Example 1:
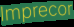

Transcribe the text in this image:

Imprecor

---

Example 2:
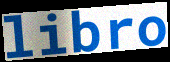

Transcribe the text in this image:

libro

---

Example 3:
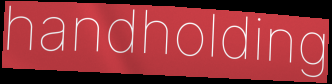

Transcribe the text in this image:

handholding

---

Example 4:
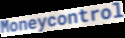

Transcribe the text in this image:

Moneycontrol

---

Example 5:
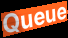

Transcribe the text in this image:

Queue